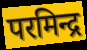
परमिन्द्र